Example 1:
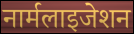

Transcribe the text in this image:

नार्मलाइजेशन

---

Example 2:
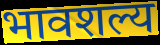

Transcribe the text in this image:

भावशल्य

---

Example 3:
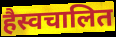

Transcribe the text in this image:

हैस्वचालित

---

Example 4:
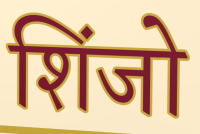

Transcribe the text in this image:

शिंजो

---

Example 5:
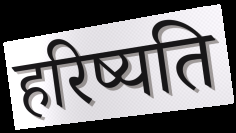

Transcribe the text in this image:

हरिष्यति